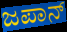
ಜಪಾನ್